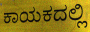
ಕಾಯಕದಲ್ಲಿ